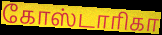
கோஸ்டாரிகா